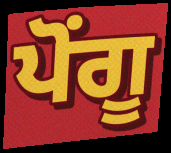
ਪੋਂਗੂ